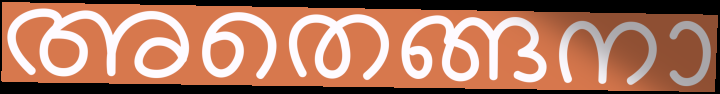
അതെങ്ങനാ